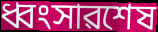
ধ্বংসাৱশেষ